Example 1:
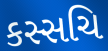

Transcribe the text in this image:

કસ્સચિ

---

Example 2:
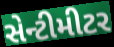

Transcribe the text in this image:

સેન્ટીમીટર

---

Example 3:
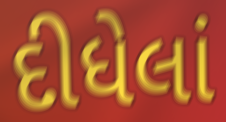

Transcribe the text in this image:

દીધેલાં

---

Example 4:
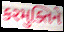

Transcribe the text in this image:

કરમુક્તિને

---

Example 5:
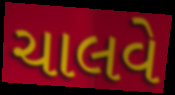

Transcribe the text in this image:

ચાલવે